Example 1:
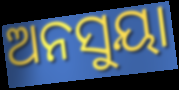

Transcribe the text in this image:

ଅନସୁୟା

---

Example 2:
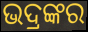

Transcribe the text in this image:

ଭଦ୍ରଙ୍କର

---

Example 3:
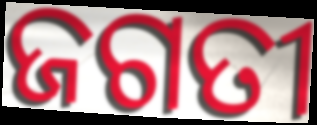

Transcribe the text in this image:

ଜଗତୀ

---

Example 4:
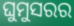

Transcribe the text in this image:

ଘୁମୁସରର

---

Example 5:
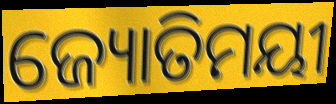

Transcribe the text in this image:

ଜ୍ୟୋତିମୟୀ